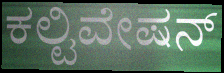
ಕಲ್ಟಿವೇಷನ್